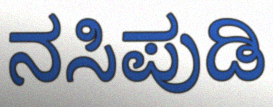
ನಸಿಪುಡಿ